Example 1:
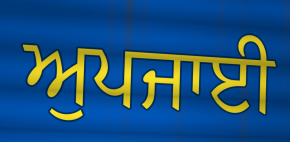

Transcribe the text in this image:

ਅੁਪਜਾਈ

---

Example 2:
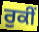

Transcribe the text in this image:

ਰੁਕੀਂ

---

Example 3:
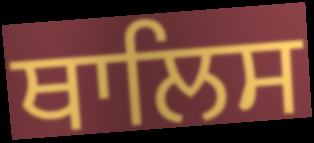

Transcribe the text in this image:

ਥਾਲਿਸ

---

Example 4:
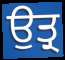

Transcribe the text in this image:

ਉਤ੍ਰ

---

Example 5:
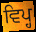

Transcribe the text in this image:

ਵਿਪ੍ਹ